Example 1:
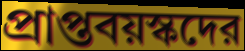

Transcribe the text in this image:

প্রাপ্তবয়স্কদের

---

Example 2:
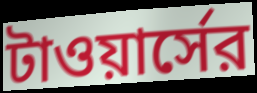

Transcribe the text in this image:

টাওয়ার্সের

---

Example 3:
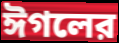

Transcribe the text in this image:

ঈগলের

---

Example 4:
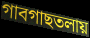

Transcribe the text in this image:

গাবগাছতলায়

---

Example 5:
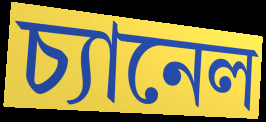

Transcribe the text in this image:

চ্যানেল